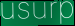
usurp